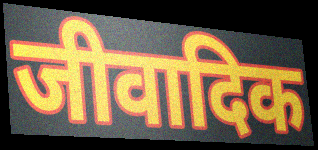
जीवादिक